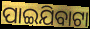
ପାଇଯିବାଟା